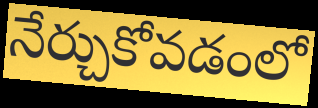
నేర్చుకోవడంలో